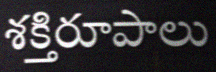
శక్తిరూపాలు